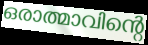
ഒരാത്മാവിന്റെ